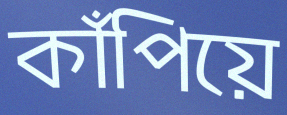
কাঁপিয়ে